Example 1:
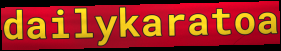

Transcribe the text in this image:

dailykaratoa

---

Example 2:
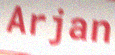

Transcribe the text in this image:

Arjan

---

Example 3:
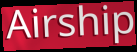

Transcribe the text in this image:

Airship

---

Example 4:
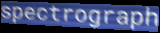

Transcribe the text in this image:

spectrograph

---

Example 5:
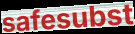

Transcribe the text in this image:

safesubst